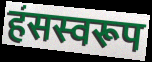
हंसस्वरूप